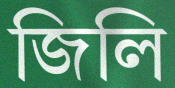
জিলি